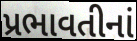
પ્રભાવતીનાં